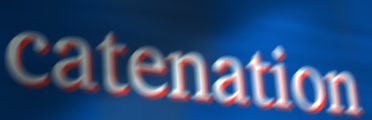
catenation